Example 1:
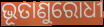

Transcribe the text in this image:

ଭୂତାଣୁରୋଧୀ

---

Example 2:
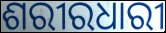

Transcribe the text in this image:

ଶରୀରଧାରୀ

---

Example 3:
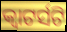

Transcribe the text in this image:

କ୍ୱାଟର୍ସଟି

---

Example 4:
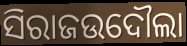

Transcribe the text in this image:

ସିରାଜଉଦୌଲା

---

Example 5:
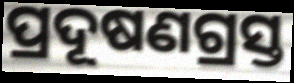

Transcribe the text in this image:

ପ୍ରଦୂଷଣଗ୍ରସ୍ତ